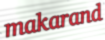
makarand